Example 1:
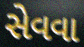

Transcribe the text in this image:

સેવવા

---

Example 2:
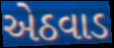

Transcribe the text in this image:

એઠવાડ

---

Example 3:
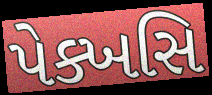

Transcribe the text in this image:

પેક્ખસિ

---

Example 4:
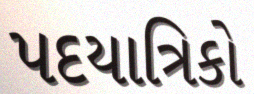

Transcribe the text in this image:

પદયાત્રિકો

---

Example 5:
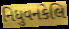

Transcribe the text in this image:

નિધુવનકેલિ